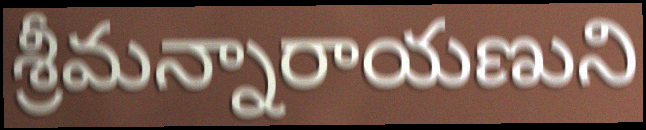
శ్రీమన్నారాయణుని